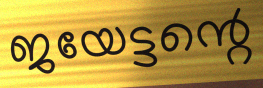
ജയേട്ടന്റെ